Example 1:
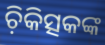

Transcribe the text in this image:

ଚ଼ିକିତ୍ସକଙ୍କ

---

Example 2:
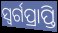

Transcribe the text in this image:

ସ୍ଵର୍ଗପ୍ରାପ୍ତି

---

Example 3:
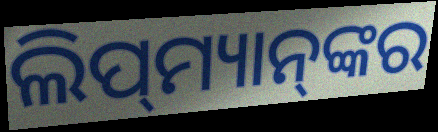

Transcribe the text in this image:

ଲିପ୍‌ମ୍ୟାନ୍‌ଙ୍କର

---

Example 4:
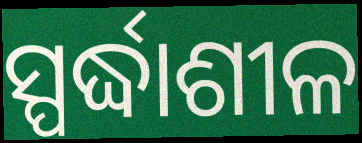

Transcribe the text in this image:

ସ୍ପର୍ଦ୍ଧାଶୀଳ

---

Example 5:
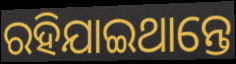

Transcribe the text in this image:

ରହିଯାଇଥାନ୍ତେ